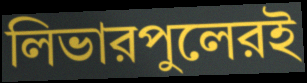
লিভারপুলেরই